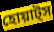
হোয়াট্স